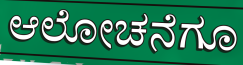
ಆಲೋಚನೆಗೂ